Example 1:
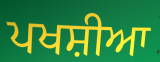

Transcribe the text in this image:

ਪਖਸ਼ੀਆ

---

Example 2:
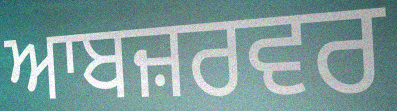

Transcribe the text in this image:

ਆਬਜ਼ਰਵਰ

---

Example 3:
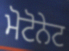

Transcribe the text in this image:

ਮੋਟੋਨੇਟ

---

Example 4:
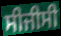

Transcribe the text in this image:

ਸੀਜੀਸੀ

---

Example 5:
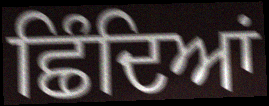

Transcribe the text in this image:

ਛਿੰਦਿਆਂ